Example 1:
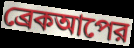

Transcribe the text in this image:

ব্রেকআপের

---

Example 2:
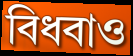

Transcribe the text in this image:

বিধবাও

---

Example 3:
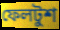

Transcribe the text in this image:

ফেলটুশ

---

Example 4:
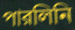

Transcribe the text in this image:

পারলিনি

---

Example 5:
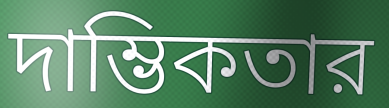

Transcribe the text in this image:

দাম্ভিকতার